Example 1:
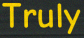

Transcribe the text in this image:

Truly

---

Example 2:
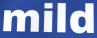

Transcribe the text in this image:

mild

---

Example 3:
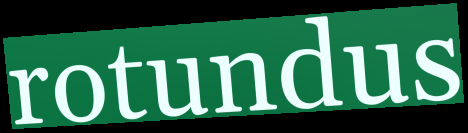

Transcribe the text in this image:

rotundus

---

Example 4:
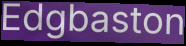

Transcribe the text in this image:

Edgbaston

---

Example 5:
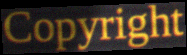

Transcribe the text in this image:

Copyright